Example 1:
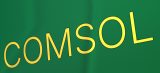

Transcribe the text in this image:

COMSOL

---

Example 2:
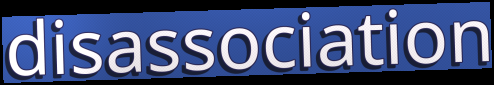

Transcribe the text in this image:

disassociation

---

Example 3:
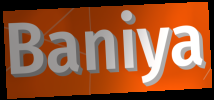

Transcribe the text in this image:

Baniya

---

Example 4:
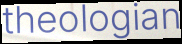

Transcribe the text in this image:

theologian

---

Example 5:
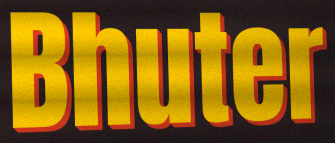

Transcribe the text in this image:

Bhuter